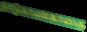
நாடுகாண்காதை